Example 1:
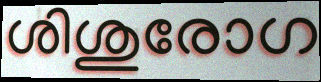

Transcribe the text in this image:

ശിശുരോഗ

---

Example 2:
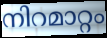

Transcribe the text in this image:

നിറമാറ്റം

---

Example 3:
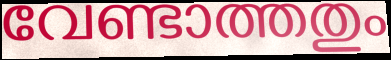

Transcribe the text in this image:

വേണ്ടാത്തതും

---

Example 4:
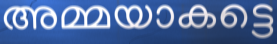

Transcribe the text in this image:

അമ്മയാകട്ടെ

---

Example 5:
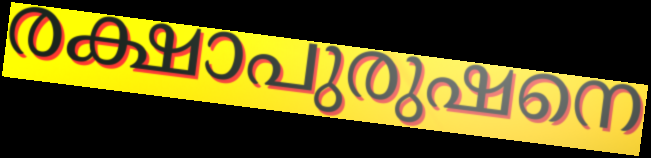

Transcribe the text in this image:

രക്ഷാപുരുഷനെ